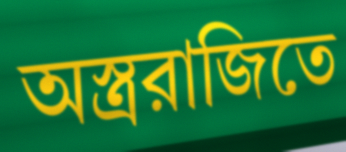
অস্ত্ররাজিতে